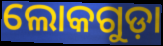
ଲୋକଗୁଡ଼ା